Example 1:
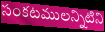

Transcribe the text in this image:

సంకటములన్నిటిని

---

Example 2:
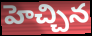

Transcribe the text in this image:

హెచ్చిన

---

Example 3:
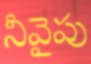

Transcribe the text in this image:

నీవైపు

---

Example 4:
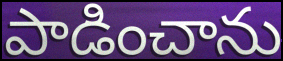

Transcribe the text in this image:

పాడించాను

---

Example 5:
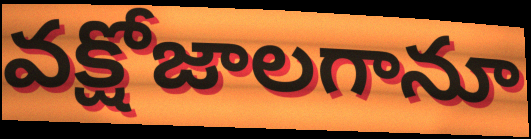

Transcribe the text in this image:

వక్షోజాలగానూ